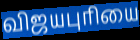
விஜயபுரியை